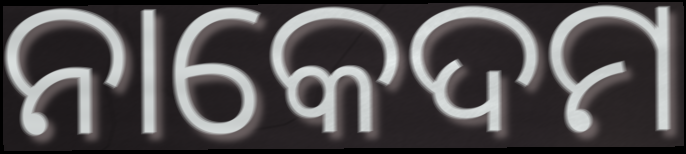
ନାକେଦମ